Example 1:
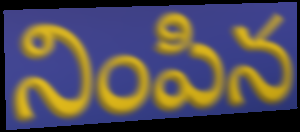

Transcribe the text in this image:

నింపిన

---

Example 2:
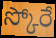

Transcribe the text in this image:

స్కోరే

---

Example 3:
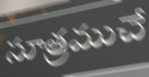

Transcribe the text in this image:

సూత్రముచే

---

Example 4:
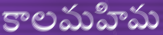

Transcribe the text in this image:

కాలమహిమ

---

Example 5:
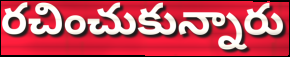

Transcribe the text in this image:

రచించుకున్నారు